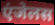
एंजेलस